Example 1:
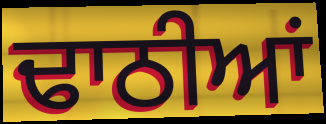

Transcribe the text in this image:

ਢਾਠੀਆਂ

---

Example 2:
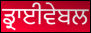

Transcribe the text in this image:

ਡ੍ਰਾਈਵੇਬਲ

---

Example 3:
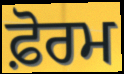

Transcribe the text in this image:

ਫ਼ੋਰਮ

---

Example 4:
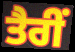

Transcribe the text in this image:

ਤੈਰੀਂ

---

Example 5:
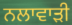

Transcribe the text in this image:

ਨਲਾਵਾੜੀ